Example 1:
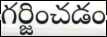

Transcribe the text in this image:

గర్జించడం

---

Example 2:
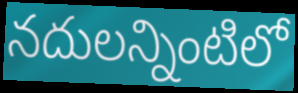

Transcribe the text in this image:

నదులన్నింటిలో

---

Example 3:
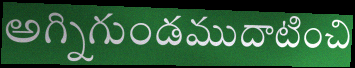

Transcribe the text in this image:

అగ్నిగుండముదాటించి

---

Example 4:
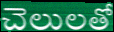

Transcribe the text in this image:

చెలులతో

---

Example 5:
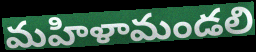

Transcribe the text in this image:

మహిళామండలి